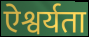
ऐश्वर्यता